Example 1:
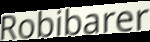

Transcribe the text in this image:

Robibarer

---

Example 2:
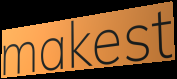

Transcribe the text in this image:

makest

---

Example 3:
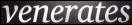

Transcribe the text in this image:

venerates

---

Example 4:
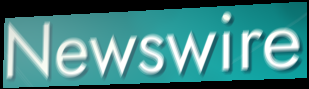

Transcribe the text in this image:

Newswire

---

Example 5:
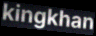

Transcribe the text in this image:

kingkhan